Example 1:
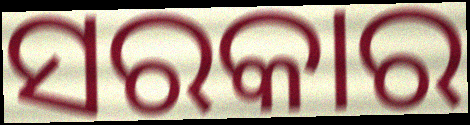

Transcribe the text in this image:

ସରକାର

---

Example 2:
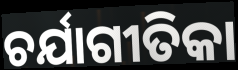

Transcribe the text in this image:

ଚର୍ଯାଗୀତିକା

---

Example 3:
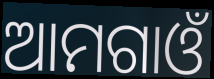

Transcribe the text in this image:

ଆମଗାଓଁ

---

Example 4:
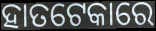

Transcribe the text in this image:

ହାତଟେକାରେ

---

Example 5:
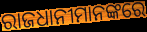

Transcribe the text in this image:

ରାଜଧାନୀମାନଙ୍କରେ